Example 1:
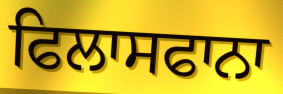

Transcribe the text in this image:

ਫਿਲਾਸਫਾਨਾ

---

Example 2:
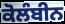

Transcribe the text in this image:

ਕੋਲੰਬੀਨ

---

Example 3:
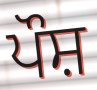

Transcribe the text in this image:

ਪੌਸ਼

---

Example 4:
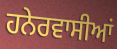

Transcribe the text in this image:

ਹਨੇਰਵਾਸੀਆਂ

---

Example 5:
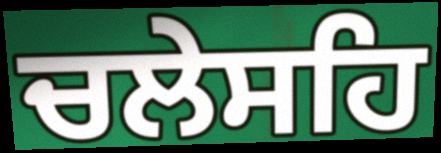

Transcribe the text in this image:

ਚਲੇਸਹਿ